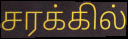
சரக்கில்